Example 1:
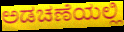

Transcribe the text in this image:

ಅಡಚಣೆಯಲ್ಲಿ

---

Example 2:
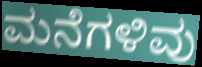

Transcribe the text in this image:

ಮನೆಗಳಿವು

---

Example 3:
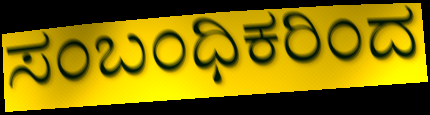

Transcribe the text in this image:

ಸಂಬಂಧಿಕರಿಂದ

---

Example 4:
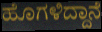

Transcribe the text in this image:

ಹೊಗಳಿದ್ದಾನೆ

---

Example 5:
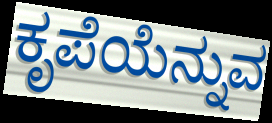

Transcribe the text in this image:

ಕೃಪೆಯೆನ್ನುವ